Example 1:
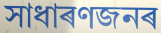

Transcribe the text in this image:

সাধাৰণজনৰ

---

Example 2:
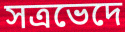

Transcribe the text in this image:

সত্ৰভেদে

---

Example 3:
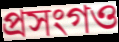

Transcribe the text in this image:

প্ৰসংগও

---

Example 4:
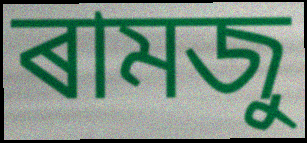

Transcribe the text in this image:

ৰামজু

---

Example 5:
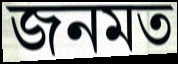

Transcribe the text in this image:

জনমত